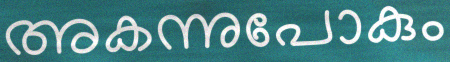
അകന്നുപോകും